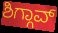
ಶಿಗ್ಗಾವ್